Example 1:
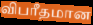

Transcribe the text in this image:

விபரீதமான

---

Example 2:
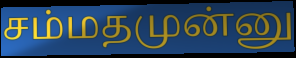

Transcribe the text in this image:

சம்மதமுன்னு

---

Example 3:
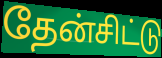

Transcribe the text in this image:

தேன்சிட்டு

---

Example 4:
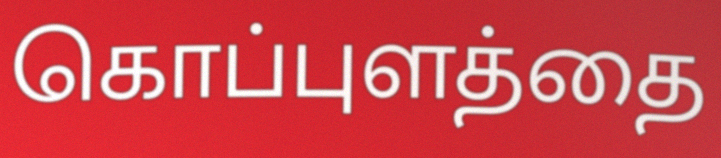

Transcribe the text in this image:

கொப்புளத்தை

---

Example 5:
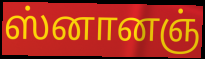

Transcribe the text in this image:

ஸ்னானஞ்